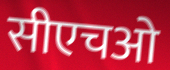
सीएचओ